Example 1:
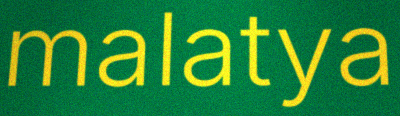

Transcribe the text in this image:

malatya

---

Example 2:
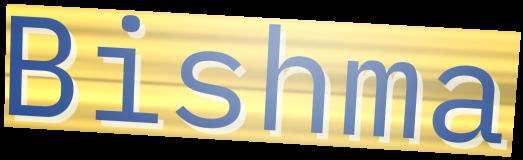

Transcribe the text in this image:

Bishma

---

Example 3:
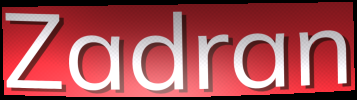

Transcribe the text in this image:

Zadran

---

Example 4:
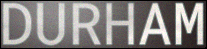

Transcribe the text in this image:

DURHAM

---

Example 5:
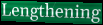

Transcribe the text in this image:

Lengthening